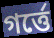
গর্ত্তে